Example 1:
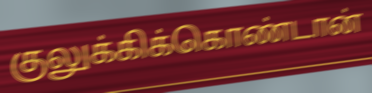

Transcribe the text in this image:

குலுக்கிக்கொண்டான்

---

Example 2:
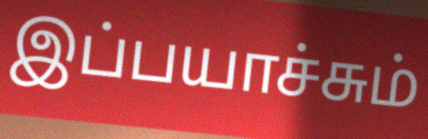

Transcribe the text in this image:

இப்பயாச்சும்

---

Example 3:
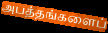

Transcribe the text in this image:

அபத்தங்களைப்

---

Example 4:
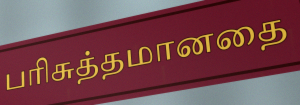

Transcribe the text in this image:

பரிசுத்தமானதை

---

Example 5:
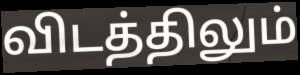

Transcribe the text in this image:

விடத்திலும்